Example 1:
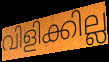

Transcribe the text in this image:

വിളിക്കില്ല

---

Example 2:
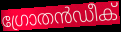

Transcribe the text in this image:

ഗ്രോതൻഡീക്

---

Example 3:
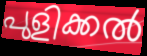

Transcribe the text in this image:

പുളിക്കൽ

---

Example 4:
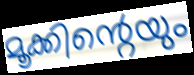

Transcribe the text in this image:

മൂക്കിന്റെയും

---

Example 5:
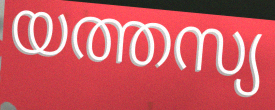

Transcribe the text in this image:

യത്തസ്യ